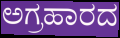
ಅಗ್ರಹಾರದ